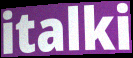
italki